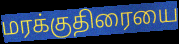
மரக்குதிரையை